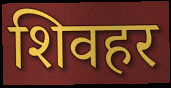
शिवहर